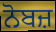
ਨੋਬਜ਼